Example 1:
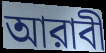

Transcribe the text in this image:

আরাবী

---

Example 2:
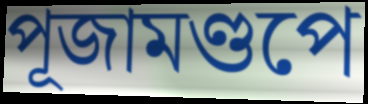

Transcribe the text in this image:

পূজামণ্ডপে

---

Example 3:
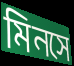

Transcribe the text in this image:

মিনসে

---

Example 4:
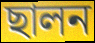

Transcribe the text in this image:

ছালন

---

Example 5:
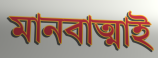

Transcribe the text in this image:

মানবাত্মাই